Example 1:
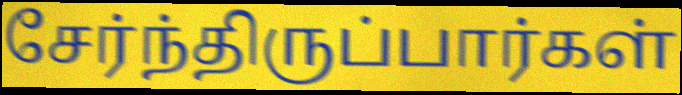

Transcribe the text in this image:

சேர்ந்திருப்பார்கள்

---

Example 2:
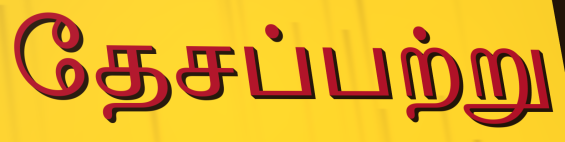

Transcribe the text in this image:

தேசப்பற்று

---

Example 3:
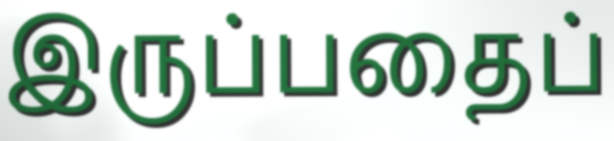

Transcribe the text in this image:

இருப்பதைப்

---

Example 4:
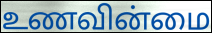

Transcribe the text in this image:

உணவின்மை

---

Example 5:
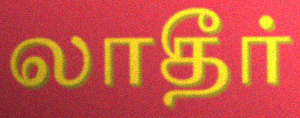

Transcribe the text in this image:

லாதீர்